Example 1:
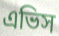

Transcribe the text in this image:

এভিস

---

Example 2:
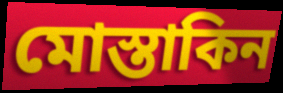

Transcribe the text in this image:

মোস্তাকিন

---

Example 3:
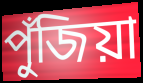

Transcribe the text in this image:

পুঁজিয়া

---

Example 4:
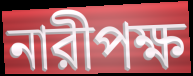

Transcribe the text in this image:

নারীপক্ষ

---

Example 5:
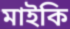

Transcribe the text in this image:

মাইকি